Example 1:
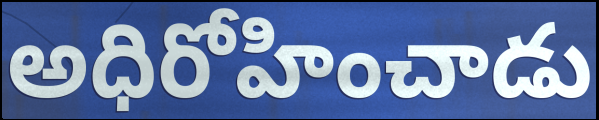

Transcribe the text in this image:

అధిరోహించాడు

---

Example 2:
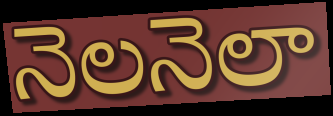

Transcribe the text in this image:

నెలనెలా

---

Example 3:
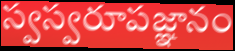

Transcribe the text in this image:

స్వస్వరూపజ్ఞానం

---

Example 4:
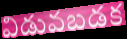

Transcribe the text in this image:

విడువబడక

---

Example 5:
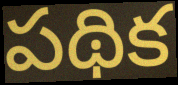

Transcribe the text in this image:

పథిక